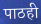
पाठही